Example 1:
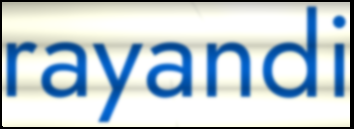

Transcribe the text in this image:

rayandi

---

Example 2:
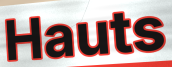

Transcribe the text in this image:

Hauts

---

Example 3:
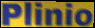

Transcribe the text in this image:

Plinio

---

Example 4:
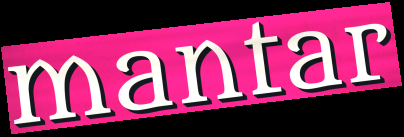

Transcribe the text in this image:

mantar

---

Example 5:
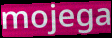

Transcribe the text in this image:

mojega